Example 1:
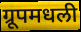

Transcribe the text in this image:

ग्रूपमधली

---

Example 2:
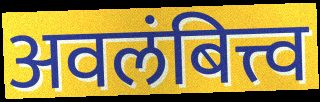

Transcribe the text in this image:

अवलंबित्त्व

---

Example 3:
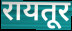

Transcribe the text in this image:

रायतूर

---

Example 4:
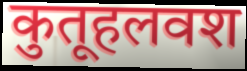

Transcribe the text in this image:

कुतूहलवश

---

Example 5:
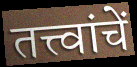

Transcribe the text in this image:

तत्त्वांचें